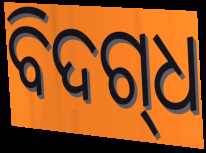
ବିଦଗ୍‌ଧ